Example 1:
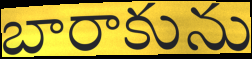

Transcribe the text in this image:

బారాకును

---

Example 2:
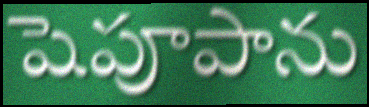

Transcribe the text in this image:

షెపూపాను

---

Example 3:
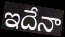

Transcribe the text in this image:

ఇదేనా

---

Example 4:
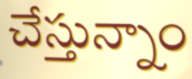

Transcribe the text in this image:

చేస్తున్నాం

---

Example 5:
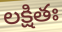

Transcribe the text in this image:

లక్షితః